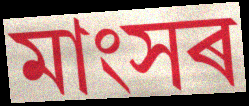
মাংসৰ